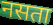
नसता